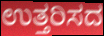
ಉತ್ತರಿಸದ